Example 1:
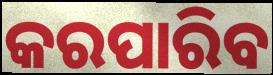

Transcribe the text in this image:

କରପାରିବ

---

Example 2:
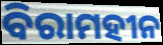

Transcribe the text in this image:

ବିରାମହୀନ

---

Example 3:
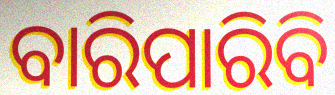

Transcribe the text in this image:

ବାରିପାରିବି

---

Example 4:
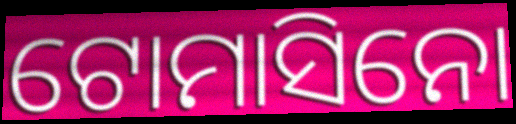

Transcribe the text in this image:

ଟୋମାସିନୋ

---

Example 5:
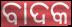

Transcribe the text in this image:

ବାଦକ